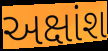
અક્ષાંશ